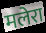
मलेरा